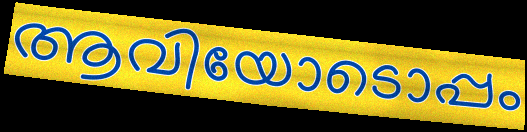
ആവിയോടൊപ്പം